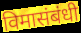
विमासंबंधी